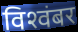
विश्वंबर